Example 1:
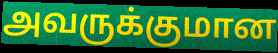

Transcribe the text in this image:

அவருக்குமான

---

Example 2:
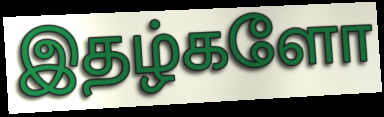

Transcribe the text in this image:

இதழ்களோ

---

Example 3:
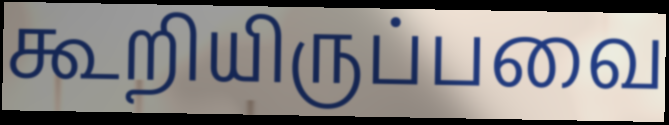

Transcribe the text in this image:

கூறியிருப்பவை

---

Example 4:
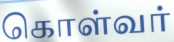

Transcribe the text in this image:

கொள்வர்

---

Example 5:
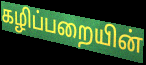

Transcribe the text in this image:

கழிப்பறையின்